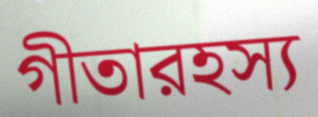
গীতারহস্য